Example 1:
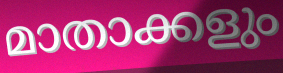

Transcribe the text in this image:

മാതാക്കളും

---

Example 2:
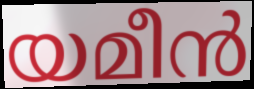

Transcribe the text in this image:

യമീൻ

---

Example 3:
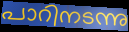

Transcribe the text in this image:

പാറിനടന്നു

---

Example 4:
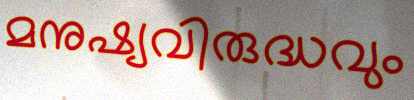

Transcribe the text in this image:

മനുഷ്യവിരുദ്ധവും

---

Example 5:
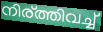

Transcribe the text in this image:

നിര്ത്തിവച്ച്